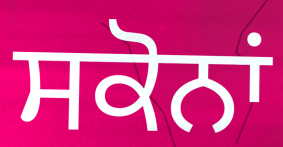
ਸਕੋਨਾਂ